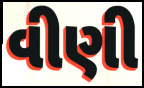
વીણી